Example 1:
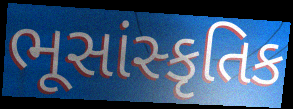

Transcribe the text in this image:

ભૂસાંસ્કૃતિક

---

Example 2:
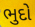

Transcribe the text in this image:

ભુદો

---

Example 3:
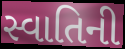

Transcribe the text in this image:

સ્વાતિની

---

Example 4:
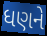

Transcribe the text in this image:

ધણને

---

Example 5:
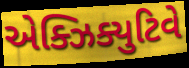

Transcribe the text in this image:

એક્ઝિક્યુટિવે